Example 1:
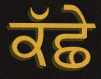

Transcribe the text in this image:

ਕੱਛੇ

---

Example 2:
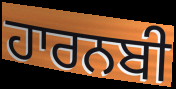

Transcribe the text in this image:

ਹਾਰਨਬੀ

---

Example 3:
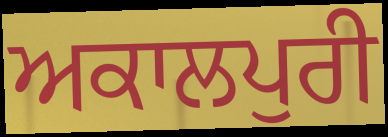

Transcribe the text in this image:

ਅਕਾਲਪੁਰੀ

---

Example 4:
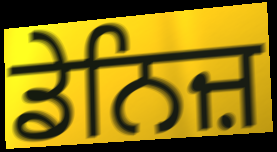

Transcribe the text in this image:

ਡੇਨਿਜ਼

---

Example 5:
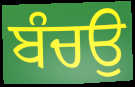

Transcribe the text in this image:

ਬੰਚਉ